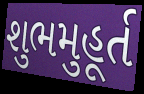
શુભમુહૂર્ત